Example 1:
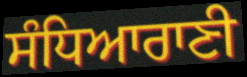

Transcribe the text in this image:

ਸੰਧਿਆਰਾਣੀ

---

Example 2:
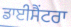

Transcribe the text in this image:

ਡਾਈਸੈਂਟਰਾ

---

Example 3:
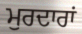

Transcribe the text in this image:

ਮੁਰਦਾਰਾਂ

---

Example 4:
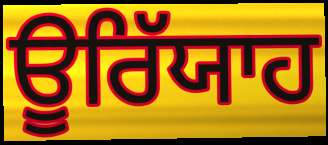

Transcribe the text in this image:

ਊਰਿੱਯਾਹ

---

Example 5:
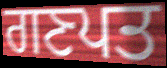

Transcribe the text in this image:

ਗਣਪਤ